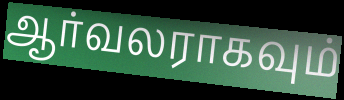
ஆர்வலராகவும்